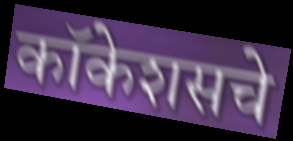
कॉकेशसचे